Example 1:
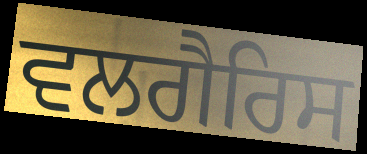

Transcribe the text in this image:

ਵਲਗੈਰਿਸ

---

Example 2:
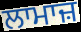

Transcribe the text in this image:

ਲਾਮਾਜ਼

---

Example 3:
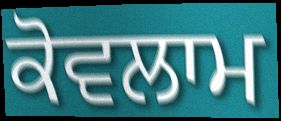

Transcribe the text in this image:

ਕੋਵਲਾਮ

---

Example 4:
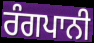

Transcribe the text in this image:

ਰੰਗਪਾਨੀ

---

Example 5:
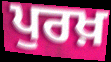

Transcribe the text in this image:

ਪੁਰਖ਼